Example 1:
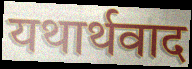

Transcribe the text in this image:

यथार्थवाद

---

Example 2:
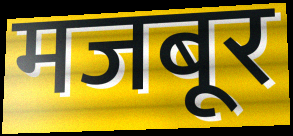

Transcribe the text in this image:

मजबूर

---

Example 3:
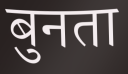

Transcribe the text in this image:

बुनता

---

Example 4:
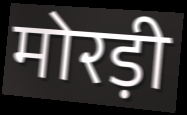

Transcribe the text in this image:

मोरड़ी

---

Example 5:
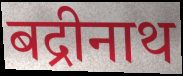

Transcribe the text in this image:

बद्रीनाथ